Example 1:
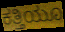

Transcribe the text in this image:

ಕತ್ತಿಯೂ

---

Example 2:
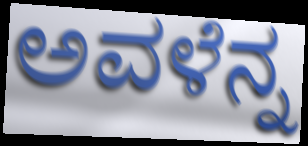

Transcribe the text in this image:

ಅವಳೆನ್ನ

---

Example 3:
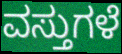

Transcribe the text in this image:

ವಸ್ತುಗಳೆ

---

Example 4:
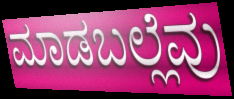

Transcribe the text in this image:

ಮಾಡಬಲ್ಲೆವು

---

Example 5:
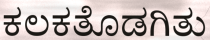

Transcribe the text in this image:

ಕಲಕತೊಡಗಿತು